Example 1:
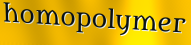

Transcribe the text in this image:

homopolymer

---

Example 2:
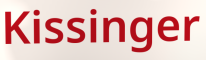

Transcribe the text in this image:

Kissinger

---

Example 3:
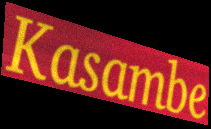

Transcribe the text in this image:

Kasambe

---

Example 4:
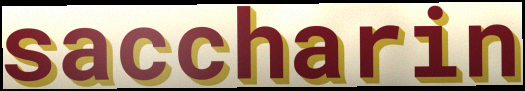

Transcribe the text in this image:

saccharin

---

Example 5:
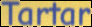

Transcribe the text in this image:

Tartar